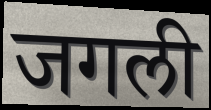
जगली